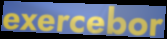
exercebor